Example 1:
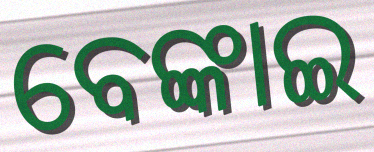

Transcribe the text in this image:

ବେଙ୍କାଇ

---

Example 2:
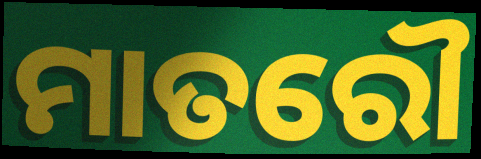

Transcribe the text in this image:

ମାତରୌ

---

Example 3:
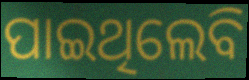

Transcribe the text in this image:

ପାଇଥିଲେବି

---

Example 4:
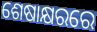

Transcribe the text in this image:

ଶେଷାକ୍ଷରରେ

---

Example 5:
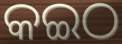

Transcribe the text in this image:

କଇଠ